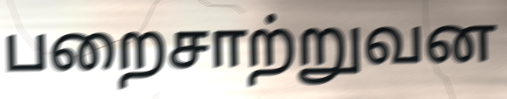
பறைசாற்றுவன